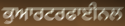
ਕੁਆਰਟਰਫਾਈਨਲ